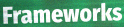
Frameworks